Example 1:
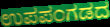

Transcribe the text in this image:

ಉಪಪಂಗಡದ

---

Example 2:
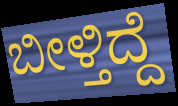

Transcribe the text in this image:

ಬೀಳ್ತಿದ್ದೆ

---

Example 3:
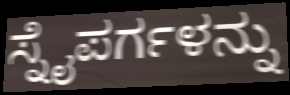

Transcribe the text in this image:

ಸ್ನೈಪರ್ಗಳನ್ನು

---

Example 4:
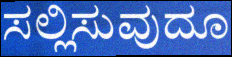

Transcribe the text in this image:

ಸಲ್ಲಿಸುವುದೂ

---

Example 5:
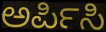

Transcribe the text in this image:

ಅರ್ಪಿಸಿ